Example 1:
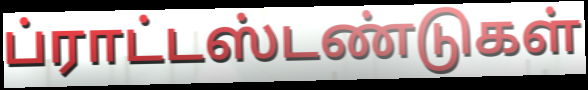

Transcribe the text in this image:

ப்ராட்டஸ்டண்டுகள்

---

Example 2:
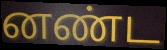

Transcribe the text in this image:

னண்ட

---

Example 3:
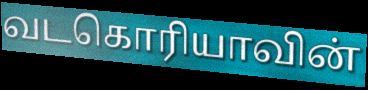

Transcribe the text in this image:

வடகொரியாவின்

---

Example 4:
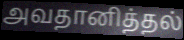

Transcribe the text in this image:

அவதானித்தல்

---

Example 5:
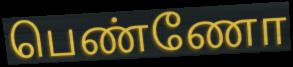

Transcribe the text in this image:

பெண்ணோ